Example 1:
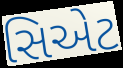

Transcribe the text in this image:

સિએટ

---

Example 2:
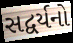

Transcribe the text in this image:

સદ્વર્યનો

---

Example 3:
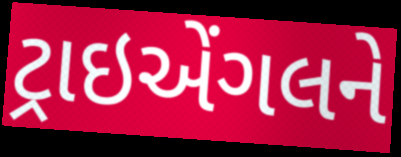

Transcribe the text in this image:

ટ્રાઇએંગલને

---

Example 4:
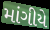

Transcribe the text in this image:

માંગીયે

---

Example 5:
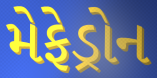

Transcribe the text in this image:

મેફેડ્રોન